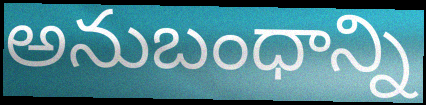
అనుబంధాన్ని